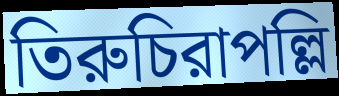
তিরুচিরাপল্লি